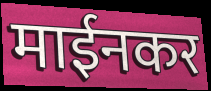
माईनकर